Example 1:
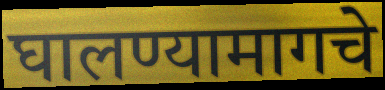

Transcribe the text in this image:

घालण्यामागचे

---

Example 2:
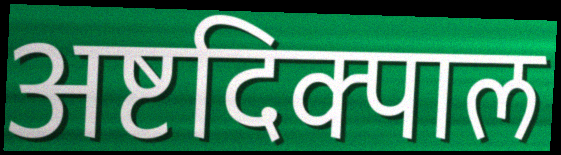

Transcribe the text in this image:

अष्टदिक्पाल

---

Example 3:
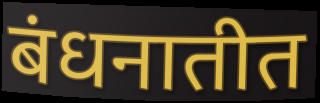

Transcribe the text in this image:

बंधनातीत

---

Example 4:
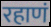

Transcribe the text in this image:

रहाणं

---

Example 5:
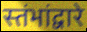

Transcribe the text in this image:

स्तंभांद्वारे